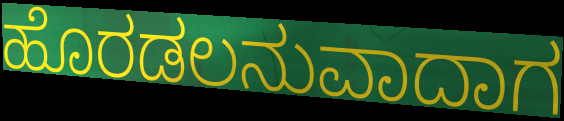
ಹೊರಡಲನುವಾದಾಗ